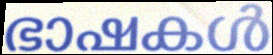
ഭാഷകൾ